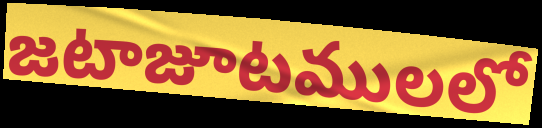
జటాజూటములలో